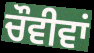
ਚੌਵੀਵਾਂ